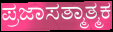
ಪ್ರಜಾಸತ್ಮಾತ್ಮಕ